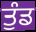
ਤੁੰਡ